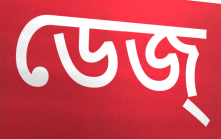
ডেজ্